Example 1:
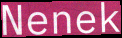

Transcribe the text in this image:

Nenek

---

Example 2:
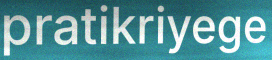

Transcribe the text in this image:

pratikriyege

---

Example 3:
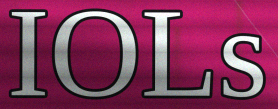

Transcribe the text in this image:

IOLs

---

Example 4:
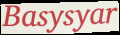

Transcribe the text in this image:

Basysyar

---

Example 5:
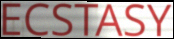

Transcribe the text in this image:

ECSTASY